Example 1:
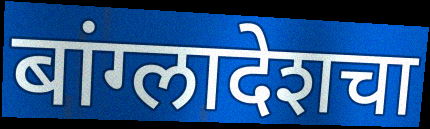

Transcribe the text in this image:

बांग्लादेशचा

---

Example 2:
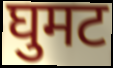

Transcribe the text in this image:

घुमट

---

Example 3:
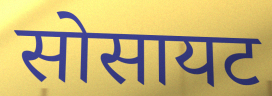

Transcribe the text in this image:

सोसायट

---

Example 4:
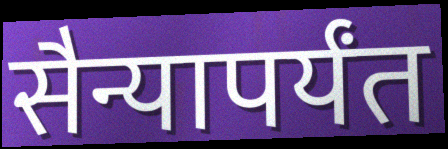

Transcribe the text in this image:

सैन्यापर्यंत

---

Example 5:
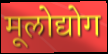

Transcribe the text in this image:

मूलोद्योग